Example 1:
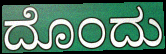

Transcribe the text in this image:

ದೊಂದು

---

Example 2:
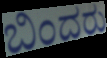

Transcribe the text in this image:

ಬಿಂದರು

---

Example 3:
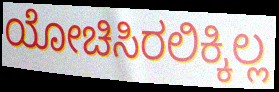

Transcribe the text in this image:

ಯೋಚಿಸಿರಲಿಕ್ಕಿಲ್ಲ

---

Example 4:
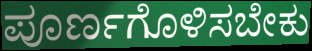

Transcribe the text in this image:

ಪೂರ್ಣಗೊಳಿಸಬೇಕು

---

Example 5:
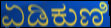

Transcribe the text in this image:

ಏಡಿಕುಣಿ